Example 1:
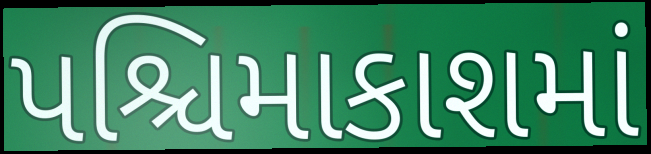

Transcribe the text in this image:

પશ્ચિમાકાશમાં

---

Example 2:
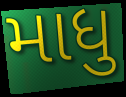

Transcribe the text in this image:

માધુ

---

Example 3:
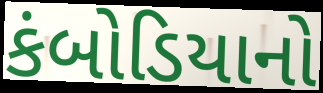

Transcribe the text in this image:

કંબોડિયાનો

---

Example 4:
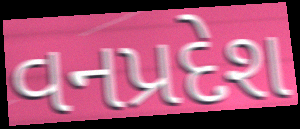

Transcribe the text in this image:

વનપ્રદેશ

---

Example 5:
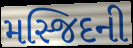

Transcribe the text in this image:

મસ્જિદની